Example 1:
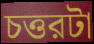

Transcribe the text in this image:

চত্তরটা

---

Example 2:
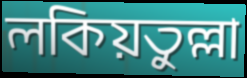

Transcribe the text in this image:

লকিয়তুল্লা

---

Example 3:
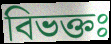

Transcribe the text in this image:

বিভক্তঃ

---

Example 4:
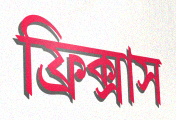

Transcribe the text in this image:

ফ্রিক্সাস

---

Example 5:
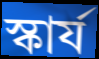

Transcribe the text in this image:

স্কার্য